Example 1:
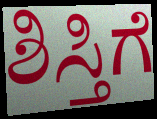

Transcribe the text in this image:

ಶಿಸ್ತಿಗೆ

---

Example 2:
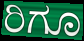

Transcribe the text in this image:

ರಿಗೂ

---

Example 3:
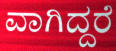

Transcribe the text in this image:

ವಾಗಿದ್ದರೆ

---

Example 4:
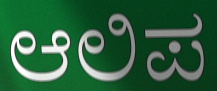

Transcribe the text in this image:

ಆಲಿಪ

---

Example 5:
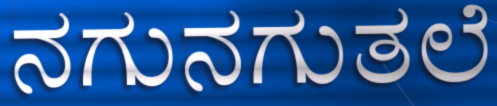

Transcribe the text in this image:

ನಗುನಗುತಲೆ